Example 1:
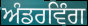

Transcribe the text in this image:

ਅੰਡਰਵਿੰਗ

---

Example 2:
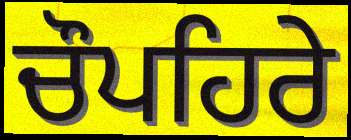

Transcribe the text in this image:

ਚੌਪਹਿਰੇ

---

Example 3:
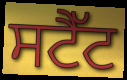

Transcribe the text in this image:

ਸਟੈੱਟ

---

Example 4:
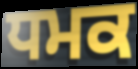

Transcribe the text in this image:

ਧਮਕ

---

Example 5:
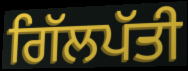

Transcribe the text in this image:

ਗਿੱਲਪੱਤੀ